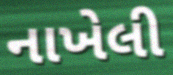
નાખેલી